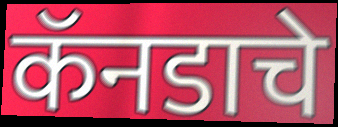
कॅनडाचे